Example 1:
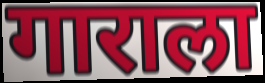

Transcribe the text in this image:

गाराला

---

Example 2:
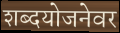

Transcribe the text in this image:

शब्दयोजनेवर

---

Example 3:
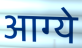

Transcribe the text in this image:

आग्ये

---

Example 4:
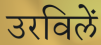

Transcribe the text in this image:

उरविलें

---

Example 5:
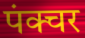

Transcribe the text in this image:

पंक्चर